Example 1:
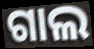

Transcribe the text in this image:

ଗାଲ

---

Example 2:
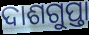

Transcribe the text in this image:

ଦାଶଗୁପ୍ତା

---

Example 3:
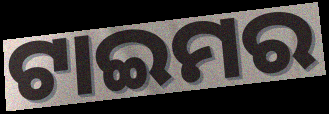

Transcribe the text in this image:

ଟାଇମର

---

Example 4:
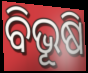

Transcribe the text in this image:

ବିଭୂଷି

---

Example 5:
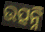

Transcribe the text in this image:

ଉତ୍ପନ୍ନି